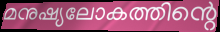
മനുഷ്യലോകത്തിന്റെ